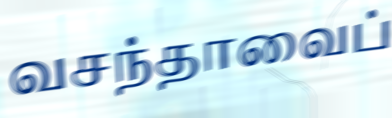
வசந்தாவைப்